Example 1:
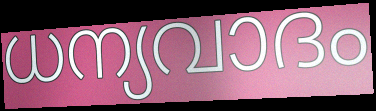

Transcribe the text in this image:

ധന്യവാദം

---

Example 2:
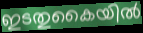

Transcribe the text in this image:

ഇടതുകൈയിൽ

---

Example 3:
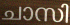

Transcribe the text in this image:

ചാസി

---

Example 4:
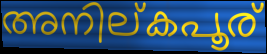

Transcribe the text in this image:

അനില്കപൂര്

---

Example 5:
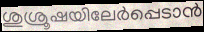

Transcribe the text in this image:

ശുശ്രൂഷയിലേർപ്പെടാൻ